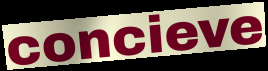
concieve